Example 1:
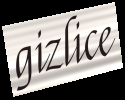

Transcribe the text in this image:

gizlice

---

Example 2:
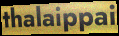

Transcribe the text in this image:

thalaippai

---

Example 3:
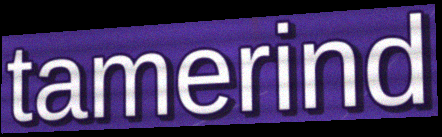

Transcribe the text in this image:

tamerind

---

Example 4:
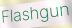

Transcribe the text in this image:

Flashgun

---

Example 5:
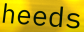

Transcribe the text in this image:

heeds